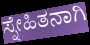
ಸ್ನೇಹಿತನಾಗಿ